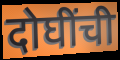
दोघींची